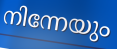
നിന്നേയും